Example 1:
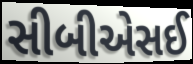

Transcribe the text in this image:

સીબીએસઈ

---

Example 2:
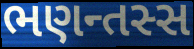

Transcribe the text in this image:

ભણન્તસ્સ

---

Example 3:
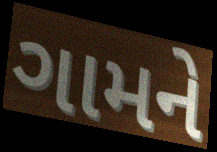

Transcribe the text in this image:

ગામને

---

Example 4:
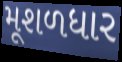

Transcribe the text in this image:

મૂશળધાર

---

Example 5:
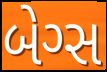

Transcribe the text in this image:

બેગ્સ